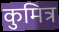
कुमित्र